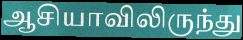
ஆசியாவிலிருந்து